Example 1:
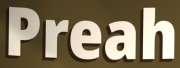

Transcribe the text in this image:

Preah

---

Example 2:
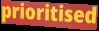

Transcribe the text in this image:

prioritised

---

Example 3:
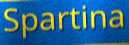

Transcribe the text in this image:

Spartina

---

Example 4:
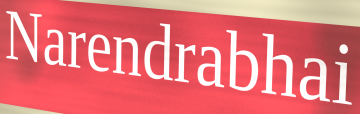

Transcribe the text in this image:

Narendrabhai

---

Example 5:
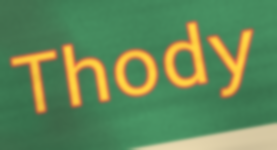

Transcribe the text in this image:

Thody